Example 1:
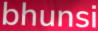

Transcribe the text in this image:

bhunsi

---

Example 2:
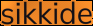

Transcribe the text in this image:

sikkide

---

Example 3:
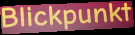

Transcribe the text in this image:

Blickpunkt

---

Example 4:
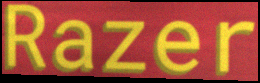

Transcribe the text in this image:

Razer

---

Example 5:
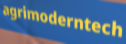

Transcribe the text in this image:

agrimoderntech